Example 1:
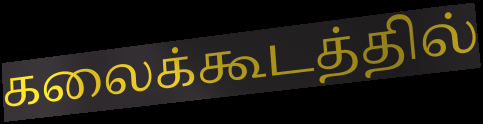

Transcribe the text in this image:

கலைக்கூடத்தில்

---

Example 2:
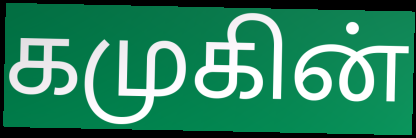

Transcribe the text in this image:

கமுகின்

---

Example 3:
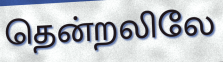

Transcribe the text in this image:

தென்றலிலே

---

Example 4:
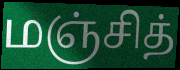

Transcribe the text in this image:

மஞ்சித்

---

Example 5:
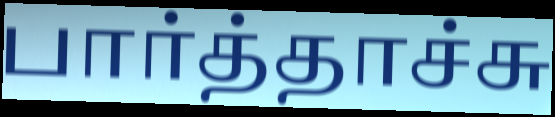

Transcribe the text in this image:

பார்த்தாச்சு